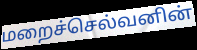
மறைச்செல்வனின்